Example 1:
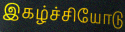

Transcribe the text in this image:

இகழ்ச்சியோடு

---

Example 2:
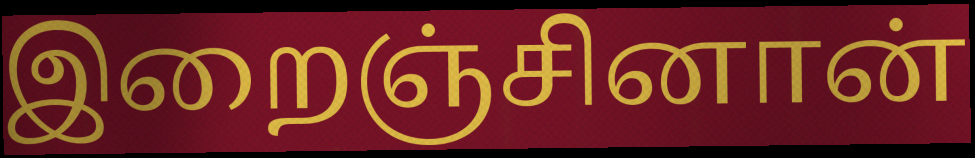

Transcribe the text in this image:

இறைஞ்சினான்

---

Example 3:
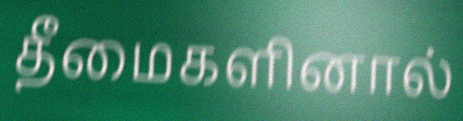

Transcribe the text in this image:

தீமைகளினால்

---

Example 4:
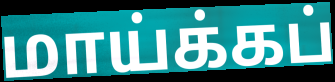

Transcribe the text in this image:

மாய்க்கப்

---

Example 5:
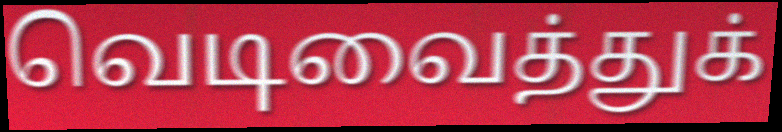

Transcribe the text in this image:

வெடிவைத்துக்